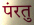
पंरतु